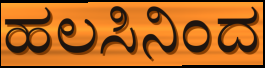
ಹಲಸಿನಿಂದ